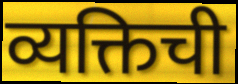
व्यक्तिची